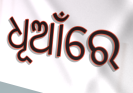
ଧୂଆଁରେ